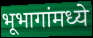
भूभागांमध्ये